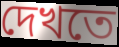
দেখতে